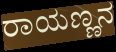
ರಾಯಣ್ಣನ